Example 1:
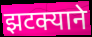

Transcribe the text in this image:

झटक्याने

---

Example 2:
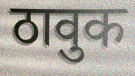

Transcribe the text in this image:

ठावुक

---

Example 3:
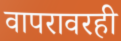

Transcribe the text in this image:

वापरावरही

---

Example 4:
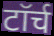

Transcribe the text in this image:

टॉर्च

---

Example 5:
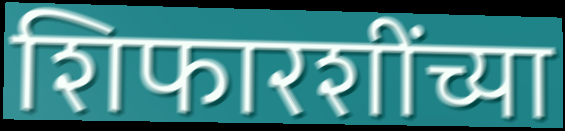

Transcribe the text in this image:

शिफारशींच्या